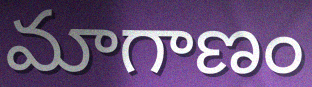
మాగాణం